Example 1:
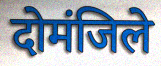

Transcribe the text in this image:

दोमंजिले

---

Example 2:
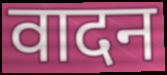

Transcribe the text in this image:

वादन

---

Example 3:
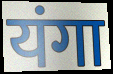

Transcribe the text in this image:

यंगा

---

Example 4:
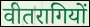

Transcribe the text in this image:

वीतरागियों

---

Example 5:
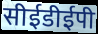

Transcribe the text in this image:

सीईडीईपी